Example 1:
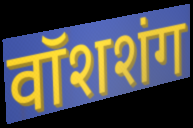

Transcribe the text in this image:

वॉशशंग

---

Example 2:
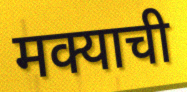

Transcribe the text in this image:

मक्याची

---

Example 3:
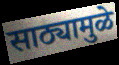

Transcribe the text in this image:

साठ्यामुळे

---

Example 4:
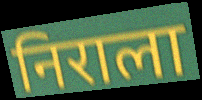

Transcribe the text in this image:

निराला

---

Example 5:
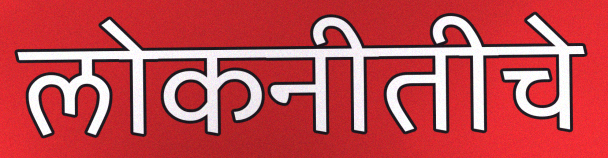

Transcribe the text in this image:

लोकनीतीचे